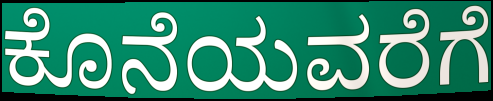
ಕೊನೆಯವರೆಗೆ